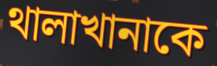
থালাখানাকে